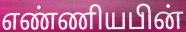
எண்ணியபின்